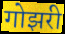
गोझरी